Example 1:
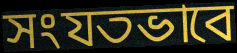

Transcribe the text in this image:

সংযতভাবে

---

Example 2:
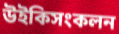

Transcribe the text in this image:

উইকিসংকলন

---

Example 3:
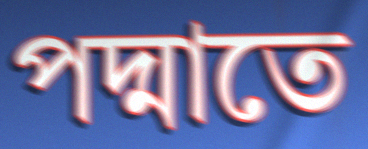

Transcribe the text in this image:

পদ্মাতে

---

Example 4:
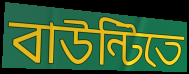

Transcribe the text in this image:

বাউন্টিতে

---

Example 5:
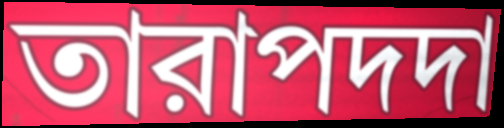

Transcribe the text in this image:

তারাপদদা